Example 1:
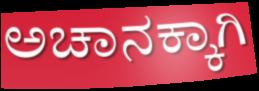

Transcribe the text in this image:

ಅಚಾನಕ್ಕಾಗಿ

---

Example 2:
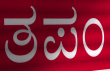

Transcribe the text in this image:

ತಪಂ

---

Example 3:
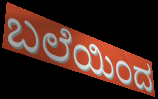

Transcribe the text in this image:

ಬಲೆಯಿಂದ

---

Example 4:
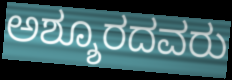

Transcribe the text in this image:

ಅಶ್ಶೂರದವರು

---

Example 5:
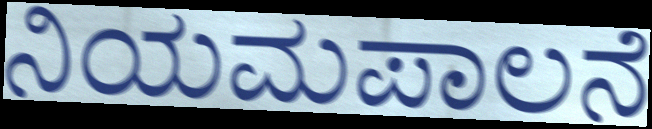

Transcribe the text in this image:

ನಿಯಮಪಾಲನೆ